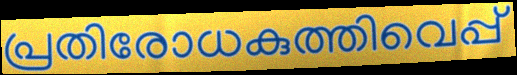
പ്രതിരോധകുത്തിവെപ്പ്